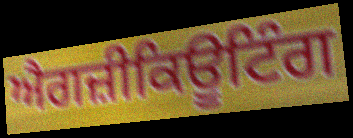
ਐਗਜ਼ੀਕਿਊਟਿੰਗ